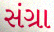
સંગ્રા